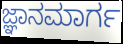
ಜ್ಞಾನಮಾರ್ಗ